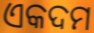
ଏକଦମ